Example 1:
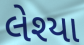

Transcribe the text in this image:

લેશ્યા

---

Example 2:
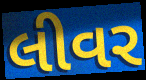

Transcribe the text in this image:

લીવર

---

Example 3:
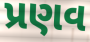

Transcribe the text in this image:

પ્રણવ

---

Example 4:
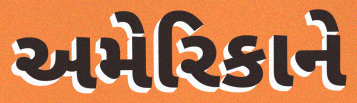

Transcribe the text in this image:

અમેરિકાને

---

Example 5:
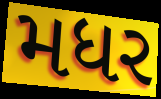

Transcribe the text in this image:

મધર